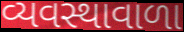
વ્યવસ્થાવાળા